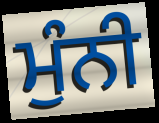
ਮੁੰਨੀ